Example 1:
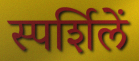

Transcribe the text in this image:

स्पर्शिलें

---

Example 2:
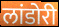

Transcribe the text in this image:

लांडोरी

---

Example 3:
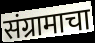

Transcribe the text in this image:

संग्रामाचा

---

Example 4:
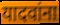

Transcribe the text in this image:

यादवांना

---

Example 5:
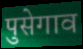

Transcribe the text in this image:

पुसेगाव